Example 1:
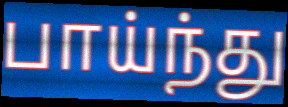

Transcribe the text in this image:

பாய்ந்து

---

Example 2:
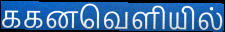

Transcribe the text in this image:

ககனவெளியில்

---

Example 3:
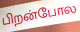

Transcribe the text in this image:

பிறன்போல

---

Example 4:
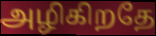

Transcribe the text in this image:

அழிகிறதே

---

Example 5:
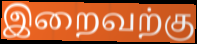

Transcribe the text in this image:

இறைவற்கு